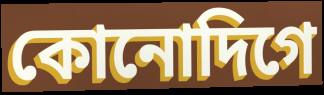
কোনোদিগে